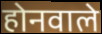
होनवाले